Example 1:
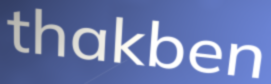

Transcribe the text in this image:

thakben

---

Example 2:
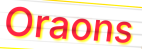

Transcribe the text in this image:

Oraons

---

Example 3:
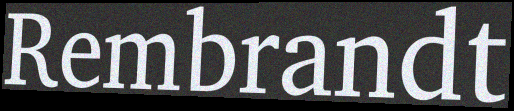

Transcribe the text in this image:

Rembrandt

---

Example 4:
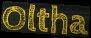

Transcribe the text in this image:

Oltha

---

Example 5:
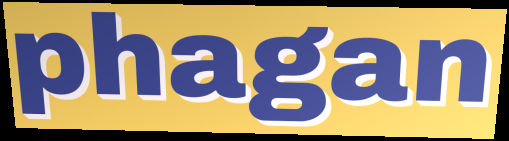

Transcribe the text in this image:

phagan